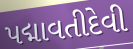
પદ્માવતીદેવી